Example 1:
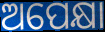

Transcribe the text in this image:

ଅପେକ୍ଷା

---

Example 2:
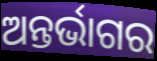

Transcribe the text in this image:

ଅନ୍ତର୍ଭାଗର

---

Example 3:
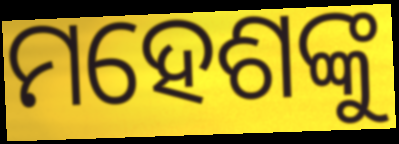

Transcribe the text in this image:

ମହେଶଙ୍କୁ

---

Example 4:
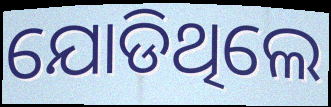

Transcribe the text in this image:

ଯୋଡିଥିଲେ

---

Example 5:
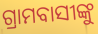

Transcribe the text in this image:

ଗ୍ରାମବାସୀଙ୍କୁ